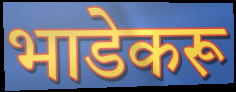
भाडेकरू